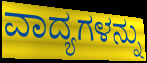
ವಾದ್ಯಗಳನ್ನು